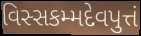
વિસ્સકમ્મદેવપુત્તં